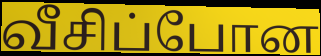
வீசிப்போன